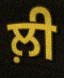
ਲ਼ੀ